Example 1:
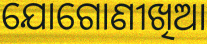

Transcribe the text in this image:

ଯୋଗୋଣୀଖିଆ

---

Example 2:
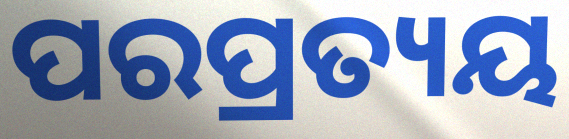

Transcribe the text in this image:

ପରପ୍ରତ୍ୟୟ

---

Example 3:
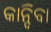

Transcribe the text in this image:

କାନ୍ଦିବା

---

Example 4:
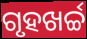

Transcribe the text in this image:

ଗୃହଖର୍ଚ୍ଚ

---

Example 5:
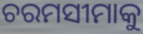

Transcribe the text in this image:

ଚରମସୀମାକୁ